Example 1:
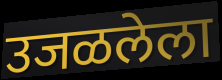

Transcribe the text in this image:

उजळलेला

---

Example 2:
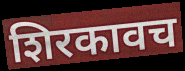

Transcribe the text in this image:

शिरकावच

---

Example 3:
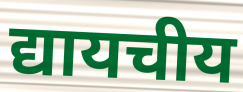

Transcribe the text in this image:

द्यायचीय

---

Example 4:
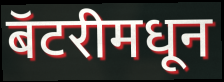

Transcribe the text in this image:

बॅटरीमधून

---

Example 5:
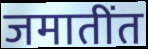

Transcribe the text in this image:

जमातींत